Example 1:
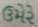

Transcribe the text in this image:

ઉમેરે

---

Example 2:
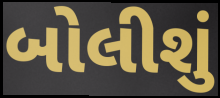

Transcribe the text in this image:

બોલીશું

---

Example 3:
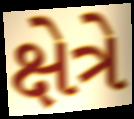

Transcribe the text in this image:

ક્ષેત્રે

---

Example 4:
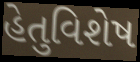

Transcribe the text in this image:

હેતુવિશેષ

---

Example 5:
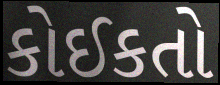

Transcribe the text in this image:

કોઈકતો